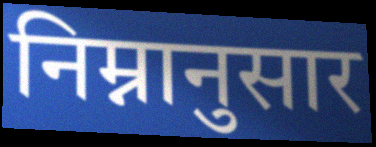
निम्नानुसार